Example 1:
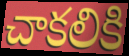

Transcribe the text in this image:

చాకలికి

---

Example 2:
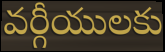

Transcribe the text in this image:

వర్గీయులకు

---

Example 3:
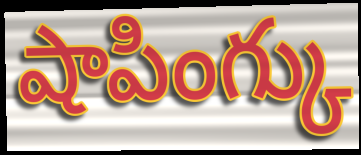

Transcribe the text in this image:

షాపింగ్కు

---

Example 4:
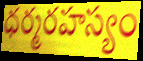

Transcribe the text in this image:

ధర్మరహస్యం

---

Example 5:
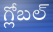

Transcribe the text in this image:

గ్లోబల్